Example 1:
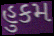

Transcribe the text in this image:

હુકમ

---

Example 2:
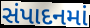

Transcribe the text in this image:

સંપાદનમાં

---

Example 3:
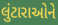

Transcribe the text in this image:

લુંટારાઓને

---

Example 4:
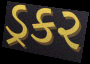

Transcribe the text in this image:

ડ્રકર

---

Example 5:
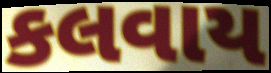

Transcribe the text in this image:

કલવાય